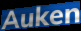
Auken